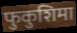
फुकुशिमा